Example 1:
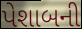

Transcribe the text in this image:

પેશાબની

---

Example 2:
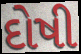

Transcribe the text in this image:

દોષી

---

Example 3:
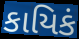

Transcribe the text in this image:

કાયિકં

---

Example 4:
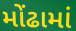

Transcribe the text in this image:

મોંઢામાં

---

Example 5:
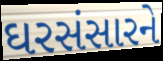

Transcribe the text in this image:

ઘરસંસારને